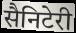
सैनिटेरी